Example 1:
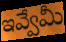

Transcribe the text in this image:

ఇవ్వేమీ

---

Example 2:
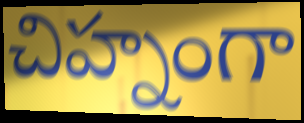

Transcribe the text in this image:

చిహ్నంగా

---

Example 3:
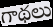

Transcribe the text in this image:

గాథలు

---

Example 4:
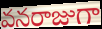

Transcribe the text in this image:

వనరాజుగా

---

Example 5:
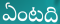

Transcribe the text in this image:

ఏంటది